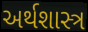
અર્થશાસ્ત્ર